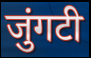
जुंगटी